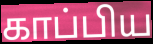
காப்பிய